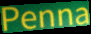
Penna